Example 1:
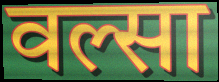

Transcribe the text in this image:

वल्सा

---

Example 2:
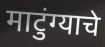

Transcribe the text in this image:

माटुंग्याचे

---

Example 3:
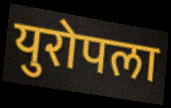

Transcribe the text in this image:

युरोपला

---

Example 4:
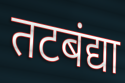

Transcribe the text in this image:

तटबंद्या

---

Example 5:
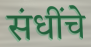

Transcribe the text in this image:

संधींचे